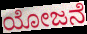
ಯೋಜನೆ